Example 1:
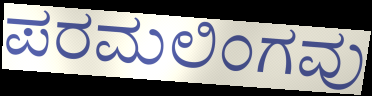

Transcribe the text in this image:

ಪರಮಲಿಂಗವು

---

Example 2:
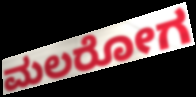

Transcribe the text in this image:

ಮಲರೋಗ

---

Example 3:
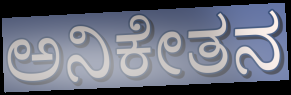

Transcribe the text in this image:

ಅನಿಕೇತನ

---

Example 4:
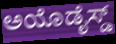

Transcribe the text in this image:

ಅಯೊಡೈಸ್ಡ್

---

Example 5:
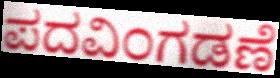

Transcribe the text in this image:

ಪದವಿಂಗಡಣೆ